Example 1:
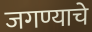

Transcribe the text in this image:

जगण्याचे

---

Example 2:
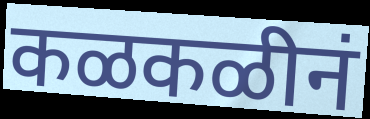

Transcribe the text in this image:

कळकळीनं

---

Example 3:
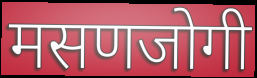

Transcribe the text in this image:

मसणजोगी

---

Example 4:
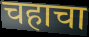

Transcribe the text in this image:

चहाचा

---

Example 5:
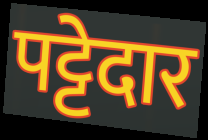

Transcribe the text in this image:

पट्टेदार